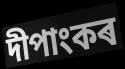
দীপাংকৰ